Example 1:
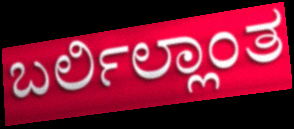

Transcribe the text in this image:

ಬರ್ಲಿಲ್ಲಾಂತ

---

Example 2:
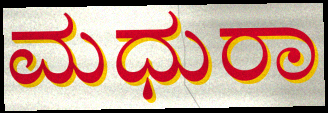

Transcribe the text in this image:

ಮಧುರಾ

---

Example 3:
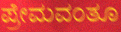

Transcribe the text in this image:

ಪ್ರೇಮವಂತೂ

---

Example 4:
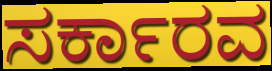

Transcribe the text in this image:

ಸರ್ಕಾರವ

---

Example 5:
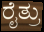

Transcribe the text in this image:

ರೈತ್ರು